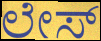
ಲೇಸ್